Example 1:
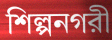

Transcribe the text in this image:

শিল্পনগরী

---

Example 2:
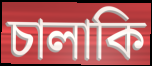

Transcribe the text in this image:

চালাকি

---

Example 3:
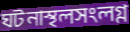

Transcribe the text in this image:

ঘটনাস্থলসংলগ্ন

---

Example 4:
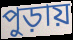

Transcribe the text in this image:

পুড়ায়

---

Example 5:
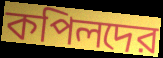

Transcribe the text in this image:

কপিলদের